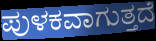
ಪುಳಕವಾಗುತ್ತದೆ